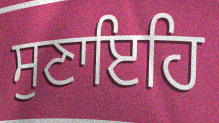
ਸੁਣਾਇਹਿ